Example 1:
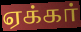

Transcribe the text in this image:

ஏக்கர்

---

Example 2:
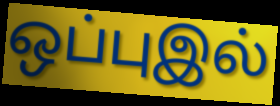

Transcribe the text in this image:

ஒப்புஇல்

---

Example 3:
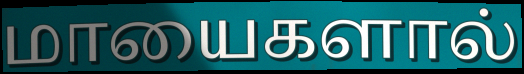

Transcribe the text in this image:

மாயைகளால்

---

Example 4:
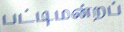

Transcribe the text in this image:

பட்டிமன்றப்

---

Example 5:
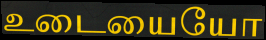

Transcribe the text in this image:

உடையையோ